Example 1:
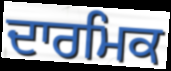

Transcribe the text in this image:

ਦਾਰਮਿਕ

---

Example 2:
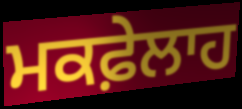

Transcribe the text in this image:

ਮਕਫ਼ੇਲਾਹ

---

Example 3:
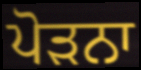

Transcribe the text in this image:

ਪੋੜਨਾ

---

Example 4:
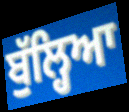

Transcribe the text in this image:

ਬੁੱਲ੍ਹਿਆ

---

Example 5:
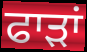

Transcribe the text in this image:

ਫਾੜਾਂ